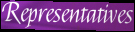
Representatives